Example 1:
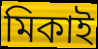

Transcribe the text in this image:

মিকাই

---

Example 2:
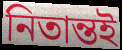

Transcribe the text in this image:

নিতান্তই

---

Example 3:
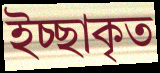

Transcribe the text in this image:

ইচ্ছাকৃত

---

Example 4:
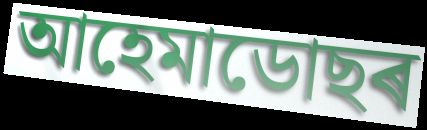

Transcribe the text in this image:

আহেমাডোছৰ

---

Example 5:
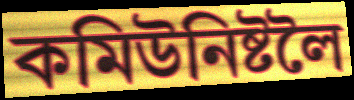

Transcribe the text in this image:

কমিউনিষ্টলৈ